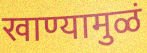
खाण्यामुळं